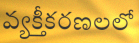
వ్యక్తీకరణలలో